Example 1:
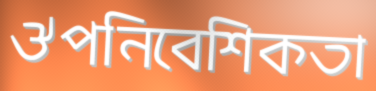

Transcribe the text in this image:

ঔপনিবেশিকতা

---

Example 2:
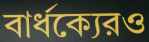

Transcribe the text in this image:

বার্ধক্যেরও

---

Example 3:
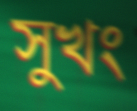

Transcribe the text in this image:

সুখং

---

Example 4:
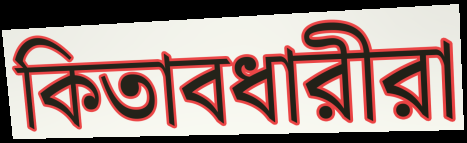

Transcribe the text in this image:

কিতাবধারীরা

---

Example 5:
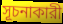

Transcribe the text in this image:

সূচনাকারী